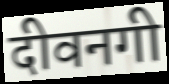
दीवनगी